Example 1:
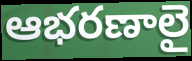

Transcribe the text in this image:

ఆభరణాలై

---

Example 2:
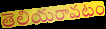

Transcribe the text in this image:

తెలియరావటం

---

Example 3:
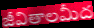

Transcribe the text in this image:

జీవితాలమీద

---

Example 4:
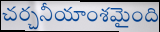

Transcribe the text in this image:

చర్చనీయాంశమైంది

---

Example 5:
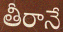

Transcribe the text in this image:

తీరానే